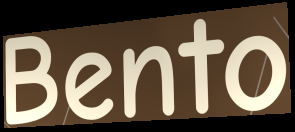
Bento